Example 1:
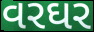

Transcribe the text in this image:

વરઘર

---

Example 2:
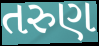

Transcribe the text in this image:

તરુણ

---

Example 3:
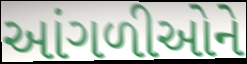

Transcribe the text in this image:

આંગળીઓને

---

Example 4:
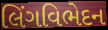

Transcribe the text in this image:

લિંગવિભેદન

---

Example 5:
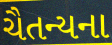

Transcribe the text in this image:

ચૈતન્યના